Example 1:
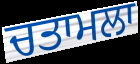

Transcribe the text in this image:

ਚਤਾਮਲਾ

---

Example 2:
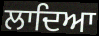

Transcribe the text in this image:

ਲਾਦਿਆ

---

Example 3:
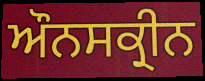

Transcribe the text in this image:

ਔਨਸਕ੍ਰੀਨ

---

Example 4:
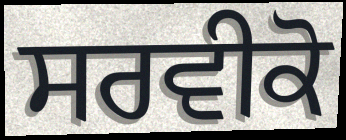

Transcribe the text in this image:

ਸਰਵੀਕੋ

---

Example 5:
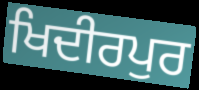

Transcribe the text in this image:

ਖਿਦੀਰਪੁਰ